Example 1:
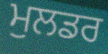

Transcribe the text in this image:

ਮੁਲਡਰ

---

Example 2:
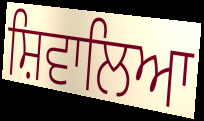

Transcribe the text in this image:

ਸ਼ਿਵਾਲਿਆ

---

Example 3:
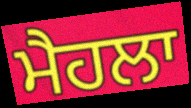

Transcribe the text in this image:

ਮੈਹਲਾ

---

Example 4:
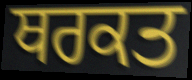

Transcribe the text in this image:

ਥਰਕਤ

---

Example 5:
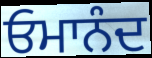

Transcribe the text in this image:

ਓਮਾਨੰਦ